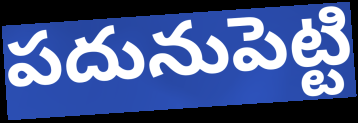
పదునుపెట్టి